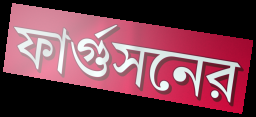
ফার্গুসনের